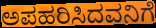
ಅಪಹರಿಸಿದವನಿಗೆ